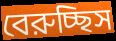
বেরুচ্ছিস